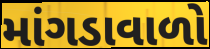
માંગડાવાળો